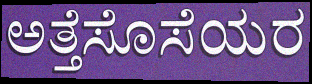
ಅತ್ತೆಸೊಸೆಯರ